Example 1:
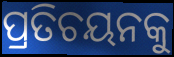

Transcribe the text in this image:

ପ୍ରତିଚୟନକୁ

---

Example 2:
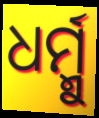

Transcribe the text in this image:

ଧର୍ମ୍ମୁ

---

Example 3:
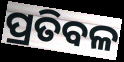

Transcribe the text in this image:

ପ୍ରତିବଳ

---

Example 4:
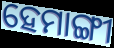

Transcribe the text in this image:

ହେମାଙ୍ଗୀ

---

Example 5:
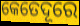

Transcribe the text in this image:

କେତେଦୂରେ